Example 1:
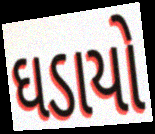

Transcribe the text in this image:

ઘડાયો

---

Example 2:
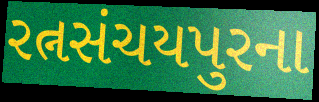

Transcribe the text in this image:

રત્નસંચયપુરના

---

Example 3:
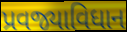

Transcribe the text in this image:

પ્રવજ્યાવિધાન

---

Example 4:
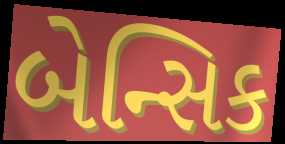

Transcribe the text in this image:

બેન્સિક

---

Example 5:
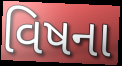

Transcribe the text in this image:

વિષના